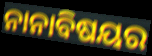
ନାନାବିଷୟର